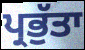
ਪ੍ਰਭੁੱਤਾ